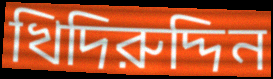
খিদিরুদ্দিন